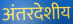
अंतरदेशीय